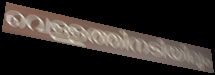
വെള്ളത്തിനടിയിലും